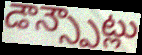
డౌన్స్పౌట్లు